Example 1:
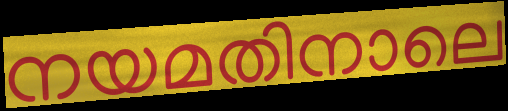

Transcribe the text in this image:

നയമതിനാലെ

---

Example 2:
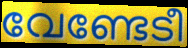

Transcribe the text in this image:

വേണ്ടേടീ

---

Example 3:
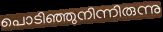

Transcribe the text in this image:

പൊടിഞ്ഞുനിന്നിരുന്നു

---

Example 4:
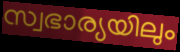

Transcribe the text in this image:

സ്വഭാര്യയിലും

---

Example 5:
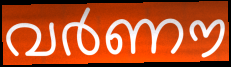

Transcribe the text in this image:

വർണൗ